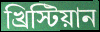
খ্রিস্টিয়ান